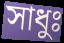
সাধুঃ